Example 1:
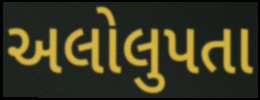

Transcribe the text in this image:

અલોલુપતા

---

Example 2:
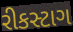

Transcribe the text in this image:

રીકસ્ટાગ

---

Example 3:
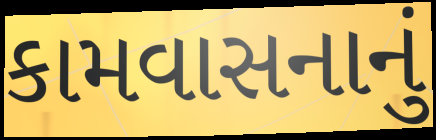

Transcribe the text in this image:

કામવાસનાનું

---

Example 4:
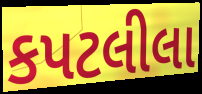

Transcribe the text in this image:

કપટલીલા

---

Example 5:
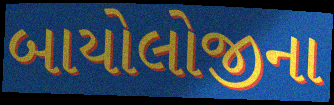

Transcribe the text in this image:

બાયોલોજીના